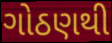
ગોઠણથી